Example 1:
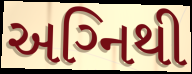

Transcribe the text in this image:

અગ્‍નિથી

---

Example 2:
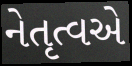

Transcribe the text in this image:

નેતૃત્વએ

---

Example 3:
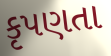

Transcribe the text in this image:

કૃપણતા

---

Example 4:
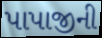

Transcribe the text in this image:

પાપાજીની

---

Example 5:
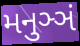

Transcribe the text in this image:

મનુઞ્ઞં